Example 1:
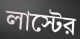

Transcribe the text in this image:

লাস্টের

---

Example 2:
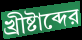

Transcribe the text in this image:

খ্রীষ্টাব্দের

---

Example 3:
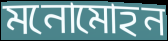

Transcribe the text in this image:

মনোমোহন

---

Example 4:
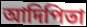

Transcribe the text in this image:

আদিপিতা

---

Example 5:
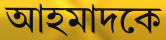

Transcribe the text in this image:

আহমাদকে